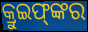
କ୍ରୁଇଫ୍‌ଙ୍କର